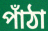
পাঁঠা